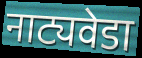
नाट्यवेडा